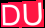
DU